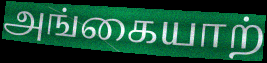
அங்கையாற்